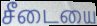
சீடையை